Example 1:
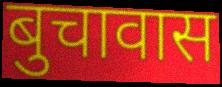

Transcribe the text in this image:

बुचावास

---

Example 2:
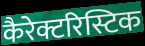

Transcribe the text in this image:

कैरेक्टरिस्टिक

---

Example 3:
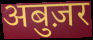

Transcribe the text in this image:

अबुज़र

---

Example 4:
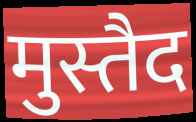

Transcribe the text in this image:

मुस्‍तैद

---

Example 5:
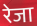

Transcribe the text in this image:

रेजा